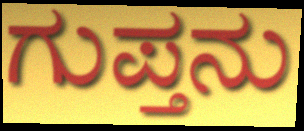
ಗುಪ್ತನು